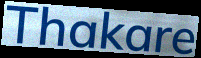
Thakare